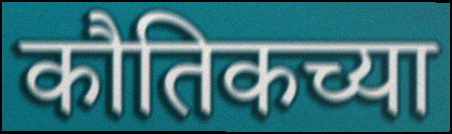
कौतिकच्या